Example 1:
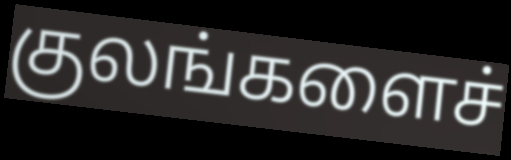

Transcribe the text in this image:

குலங்களைச்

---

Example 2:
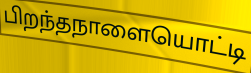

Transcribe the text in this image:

பிறந்தநாளையொட்டி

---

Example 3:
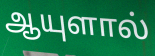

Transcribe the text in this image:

ஆயுளால்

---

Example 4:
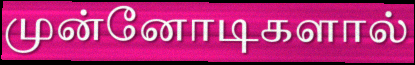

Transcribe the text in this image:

முன்னோடிகளால்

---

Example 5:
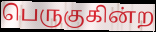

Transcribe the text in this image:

பெருகுகின்ற